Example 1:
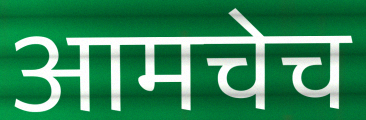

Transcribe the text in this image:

आमचेच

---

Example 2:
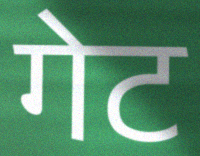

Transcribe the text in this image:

गेट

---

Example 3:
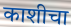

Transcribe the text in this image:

काशीचा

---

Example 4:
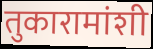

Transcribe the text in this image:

तुकारामांशी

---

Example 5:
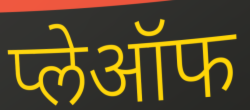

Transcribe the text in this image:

प्लेऑफ